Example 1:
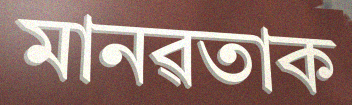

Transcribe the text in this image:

মানৱতাক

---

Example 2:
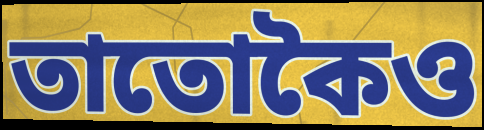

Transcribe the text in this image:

তাতোকৈও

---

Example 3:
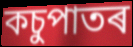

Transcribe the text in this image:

কচুপাতৰ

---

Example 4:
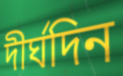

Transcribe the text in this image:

দীৰ্ঘদিন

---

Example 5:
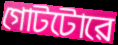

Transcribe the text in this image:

গোটটোৱে